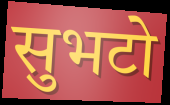
सुभटो